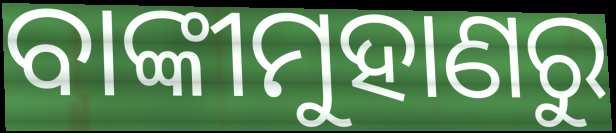
ବାଙ୍କୀମୁହାଣରୁ